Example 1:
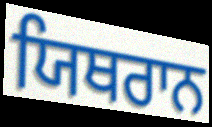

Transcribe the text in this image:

ਯਿਥਰਾਨ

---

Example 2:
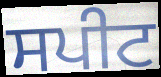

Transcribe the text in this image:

ਸਪੀਟ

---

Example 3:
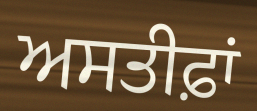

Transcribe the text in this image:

ਅਸਤੀਫ਼ਾਂ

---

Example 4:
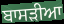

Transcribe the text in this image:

ਬਾਸੜੀਆ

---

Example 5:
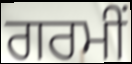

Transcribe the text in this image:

ਗਰਮੀਂ